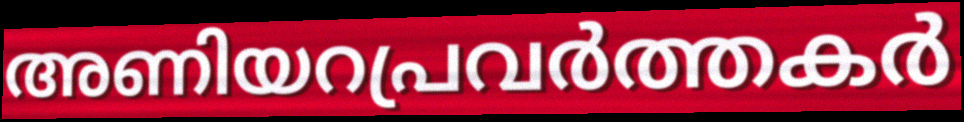
അണിയറപ്രവർത്തകർ